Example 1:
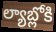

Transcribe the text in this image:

ల్యాబ్లోకి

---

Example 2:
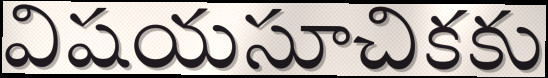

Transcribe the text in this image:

విషయసూచికకు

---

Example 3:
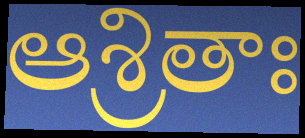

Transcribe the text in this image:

ఆశ్రితాః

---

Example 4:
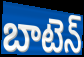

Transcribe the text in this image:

బాటెన్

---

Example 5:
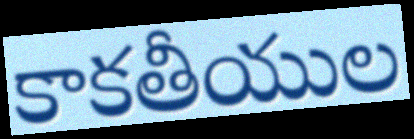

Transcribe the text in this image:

కాకతీయుల